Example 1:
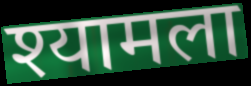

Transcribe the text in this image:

श्यामला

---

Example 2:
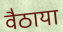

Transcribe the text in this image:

वैठाया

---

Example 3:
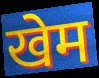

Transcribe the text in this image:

खेम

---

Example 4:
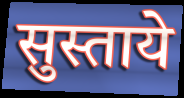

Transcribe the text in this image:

सुस्ताये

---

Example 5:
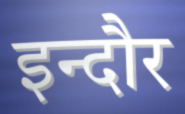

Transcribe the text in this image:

इन्दौर